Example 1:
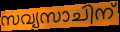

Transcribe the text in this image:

സവ്യസാചിന്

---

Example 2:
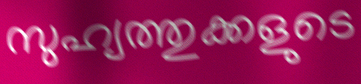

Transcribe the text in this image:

സുഹ്യത്തുക്കളുടെ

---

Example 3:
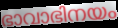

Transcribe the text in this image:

ഭാവാഭിനയം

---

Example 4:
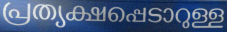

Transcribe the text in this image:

പ്രത്യക്ഷപ്പെടാറുള്ള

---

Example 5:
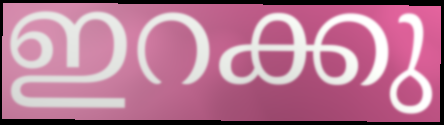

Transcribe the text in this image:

ഇറക്കു